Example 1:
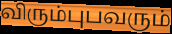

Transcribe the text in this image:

விரும்புபவரும்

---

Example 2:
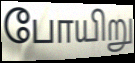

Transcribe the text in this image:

போயிறு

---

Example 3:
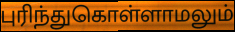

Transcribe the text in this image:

புரிந்துகொள்ளாமலும்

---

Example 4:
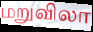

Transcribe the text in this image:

மறுவிலா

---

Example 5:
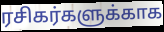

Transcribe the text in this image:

ரசிகர்களுக்காக